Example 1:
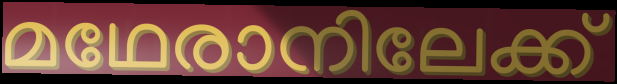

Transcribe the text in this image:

മഥേരാനിലേക്ക്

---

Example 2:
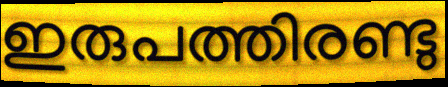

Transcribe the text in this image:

ഇരുപത്തിരണ്ടു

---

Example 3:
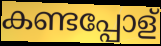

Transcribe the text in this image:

കണ്ടപ്പോള്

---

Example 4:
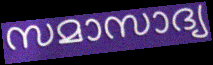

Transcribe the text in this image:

സമാസാദ്യ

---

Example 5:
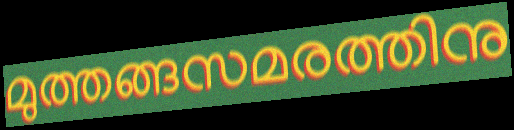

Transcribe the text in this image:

മുത്തങ്ങസമരത്തിനു